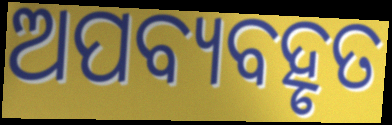
ଅପବ୍ୟବହୃତ